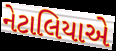
નેટાલિયાએ